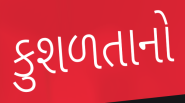
કુશળતાનો